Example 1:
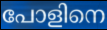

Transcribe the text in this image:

പോളിനെ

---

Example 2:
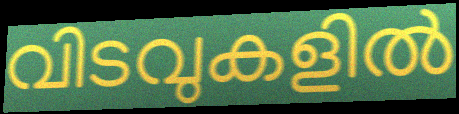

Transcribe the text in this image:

വിടവുകളിൽ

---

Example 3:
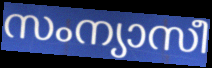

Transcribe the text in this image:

സംന്യാസീ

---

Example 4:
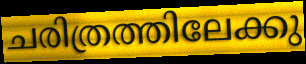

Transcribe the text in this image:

ചരിത്രത്തിലേക്കു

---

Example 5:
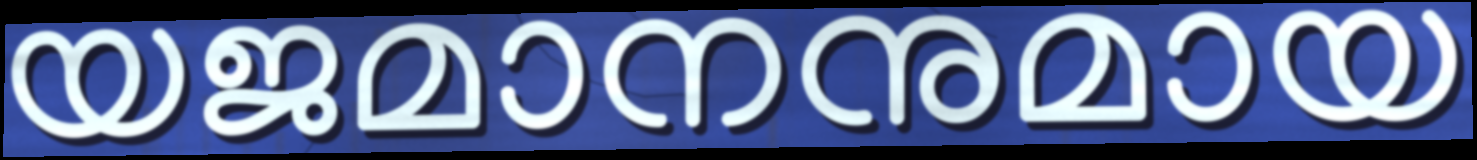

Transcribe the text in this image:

യജമാനനുമായ